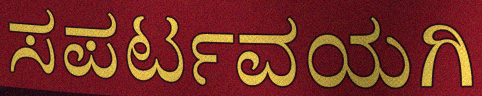
ಸಪರ್ಟವಯಗಿ